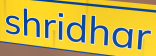
shridhar